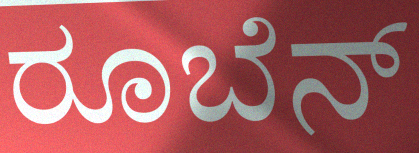
ರೂಬೆನ್